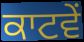
ਕਾਟਵੇਂ